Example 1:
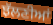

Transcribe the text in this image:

ਝੱਲਣੀਆਂ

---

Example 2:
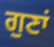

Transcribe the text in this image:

ਗੁਣਾਂ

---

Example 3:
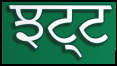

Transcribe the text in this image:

ਝਟ੍ਟ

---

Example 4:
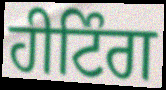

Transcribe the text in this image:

ਹੀਟਿੰਗ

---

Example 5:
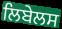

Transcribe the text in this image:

ਲਿਬੇਲਸ